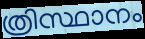
ത്രിസ്ഥാനം